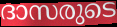
ദാസരുടെ